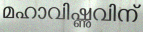
മഹാവിഷ്ണുവിന്